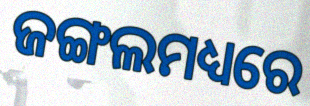
ଜଙ୍ଗଲମଧ୍ୟରେ